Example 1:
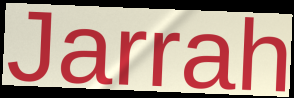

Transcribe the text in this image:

Jarrah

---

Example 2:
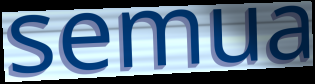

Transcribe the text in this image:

semua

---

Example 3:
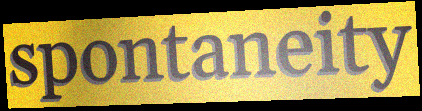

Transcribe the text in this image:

spontaneity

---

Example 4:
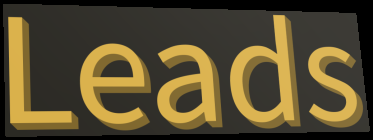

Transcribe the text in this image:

Leads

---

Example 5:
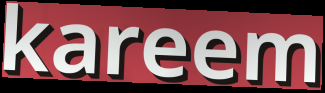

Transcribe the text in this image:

kareem